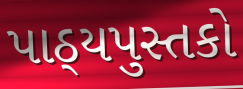
પાઠ્યપુસ્તકો